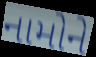
નામોને